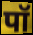
पॉ